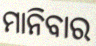
ମାନିବାର